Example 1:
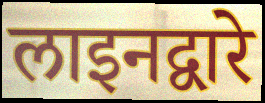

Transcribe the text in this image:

लाइनद्वारे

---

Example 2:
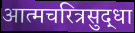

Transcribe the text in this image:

आत्मचरित्रसुद्धा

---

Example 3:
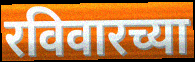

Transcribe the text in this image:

रविवारच्या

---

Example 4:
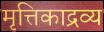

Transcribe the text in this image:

मृत्तिकाद्रव्य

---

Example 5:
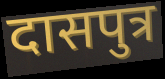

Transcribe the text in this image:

दासपुत्र